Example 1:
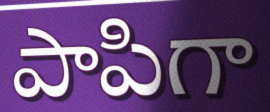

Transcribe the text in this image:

పాపిగా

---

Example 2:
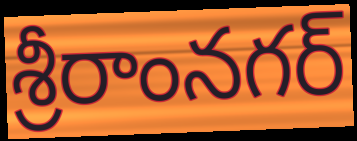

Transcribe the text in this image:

శ్రీరాంనగర్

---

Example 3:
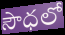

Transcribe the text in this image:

సౌధలో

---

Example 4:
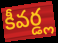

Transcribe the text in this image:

కీవర్డ్ల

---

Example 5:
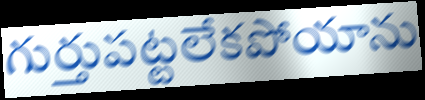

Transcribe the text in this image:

గుర్తుపట్టలేకపోయాను